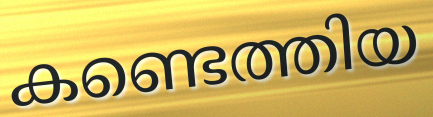
കണ്ടെത്തിയ